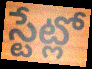
స్టేట్లో